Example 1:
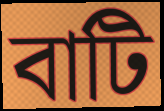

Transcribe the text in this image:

বাটি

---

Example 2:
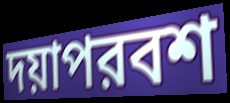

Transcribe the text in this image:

দয়াপরবশ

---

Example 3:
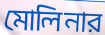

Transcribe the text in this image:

মোলিনার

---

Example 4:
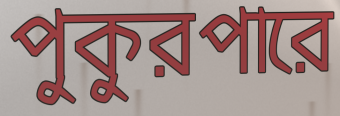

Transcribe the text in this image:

পুকুরপারে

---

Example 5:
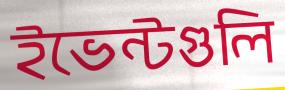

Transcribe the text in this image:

ইভেন্টগুলি